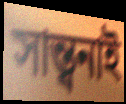
সান্ত্বনাই